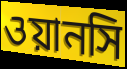
ওয়ানসি